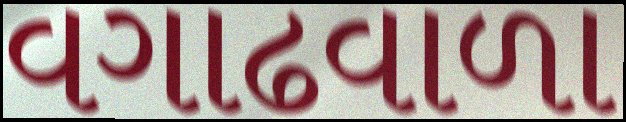
વગાઢવાળા